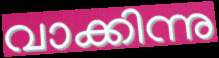
വാക്കിന്നു